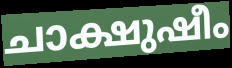
ചാക്ഷുഷീം